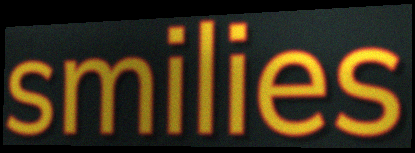
smilies